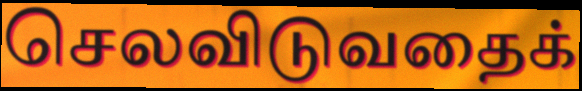
செலவிடுவதைக்